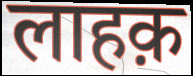
लाहक़